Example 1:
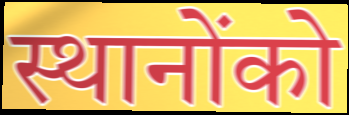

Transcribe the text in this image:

स्थानोंको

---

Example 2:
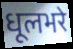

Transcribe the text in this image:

धूलभरे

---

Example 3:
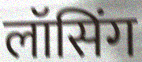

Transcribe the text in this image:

लॉसिंग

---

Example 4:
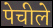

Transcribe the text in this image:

पेचीले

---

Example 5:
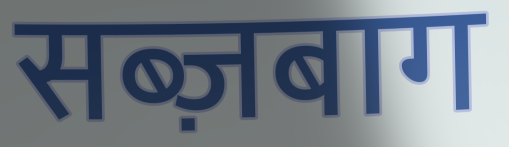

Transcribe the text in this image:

सब्ज़बाग